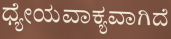
ಧ್ಯೇಯವಾಕ್ಯವಾಗಿದೆ